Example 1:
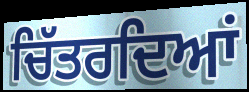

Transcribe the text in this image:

ਚਿੱਤਰਦਿਆਂ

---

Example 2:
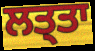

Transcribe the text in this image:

ਲਤ੍ਤਾ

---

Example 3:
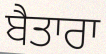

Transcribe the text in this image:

ਬੈਤਾਰਾ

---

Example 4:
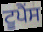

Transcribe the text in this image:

ਟੂਪੈਂਸ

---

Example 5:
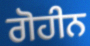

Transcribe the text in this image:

ਗੋਹੀਨ